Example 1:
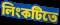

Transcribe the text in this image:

লিংকটিতে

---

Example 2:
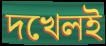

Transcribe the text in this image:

দখেলই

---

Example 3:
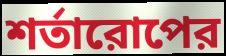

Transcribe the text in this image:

শর্তারোপের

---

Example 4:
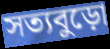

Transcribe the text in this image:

সত্যবুড়ো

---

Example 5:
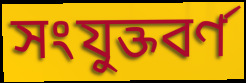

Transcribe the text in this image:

সংযুক্তবর্ণ